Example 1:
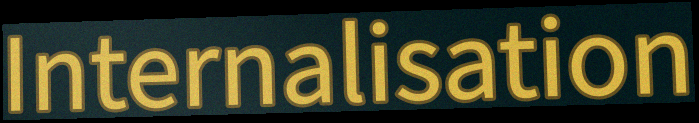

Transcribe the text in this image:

Internalisation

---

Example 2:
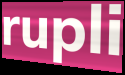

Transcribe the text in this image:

rupli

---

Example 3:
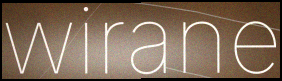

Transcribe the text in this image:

wirane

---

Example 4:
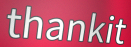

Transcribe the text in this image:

thankit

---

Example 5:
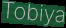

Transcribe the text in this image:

Tobiya